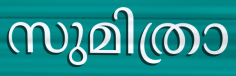
സുമിത്രാ